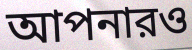
আপনারও